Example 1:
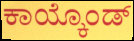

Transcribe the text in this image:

ಕಾಯ್ಕೊಂಡ್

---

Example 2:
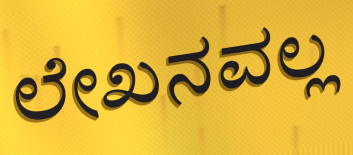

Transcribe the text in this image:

ಲೇಖನವಲ್ಲ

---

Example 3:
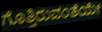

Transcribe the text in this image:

ಗೊತ್ತಿರುವಂತೆಯೇ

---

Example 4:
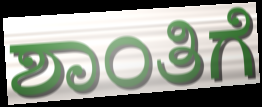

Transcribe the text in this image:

ಶಾಂತಿಗೆ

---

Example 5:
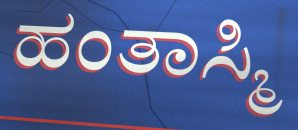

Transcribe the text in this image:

ಹಂತಾಸ್ಮಿ